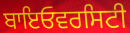
ਬਾਇਓਵਰਸਿਟੀ